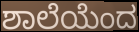
ಶಾಲೆಯೆಂದ